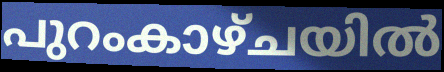
പുറംകാഴ്ചയിൽ